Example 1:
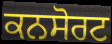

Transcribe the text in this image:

ਕਨਸੋਰਟ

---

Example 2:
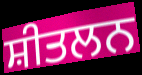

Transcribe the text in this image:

ਸ਼ੀਤਲਨ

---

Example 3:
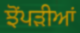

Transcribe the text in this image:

ਝੋਂਪੜੀਆਂ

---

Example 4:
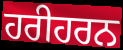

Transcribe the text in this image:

ਹਰੀਹਰਨ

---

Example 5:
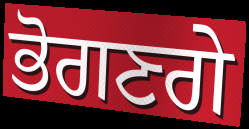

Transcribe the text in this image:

ਭੋਗਣਗੇ